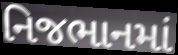
નિજભાનમાં